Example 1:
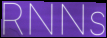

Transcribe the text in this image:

RNNs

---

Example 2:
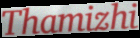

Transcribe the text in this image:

Thamizhi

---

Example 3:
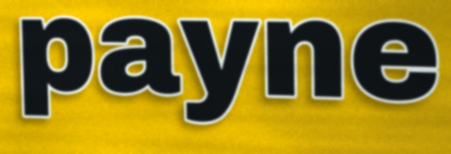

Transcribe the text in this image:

payne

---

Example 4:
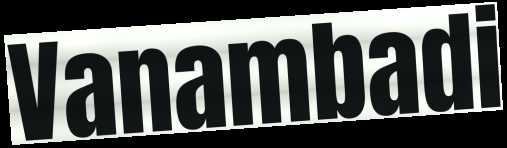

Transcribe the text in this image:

Vanambadi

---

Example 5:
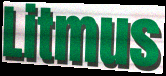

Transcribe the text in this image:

Litmus